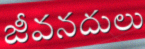
జీవనదులు